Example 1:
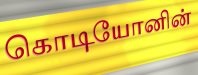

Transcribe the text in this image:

கொடியோனின்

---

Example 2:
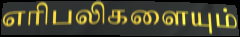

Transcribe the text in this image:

எரிபலிகளையும்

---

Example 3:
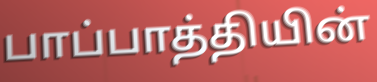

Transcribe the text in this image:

பாப்பாத்தியின்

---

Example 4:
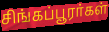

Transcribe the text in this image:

சிங்கப்பூரர்கள்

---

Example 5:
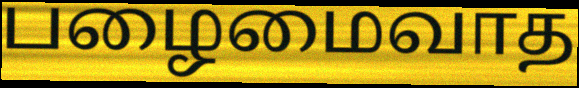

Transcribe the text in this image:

பழைமைவாத